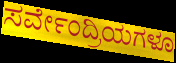
ಸರ್ವೇಂದ್ರಿಯಗಳೂ